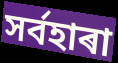
সৰ্বহাৰা